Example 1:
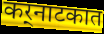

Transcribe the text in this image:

कर्नाटकात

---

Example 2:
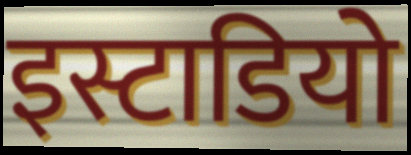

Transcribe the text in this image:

इस्टाडियो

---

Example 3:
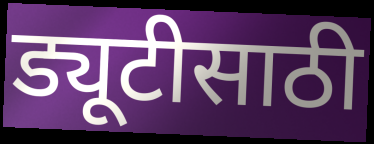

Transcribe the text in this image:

ड्यूटीसाठी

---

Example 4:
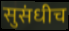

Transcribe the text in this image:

सुसंधीच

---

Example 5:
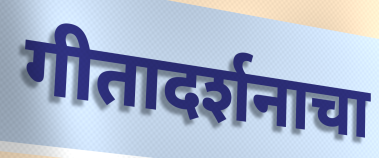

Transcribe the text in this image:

गीतादर्शनाचा